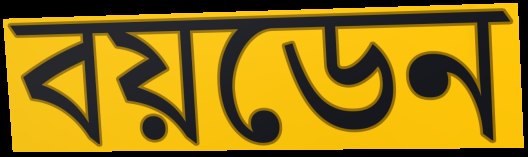
বয়ডেন